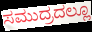
ಸಮುದ್ರದಲ್ಲೂ